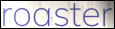
roaster